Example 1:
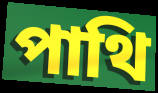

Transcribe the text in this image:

পাথি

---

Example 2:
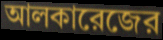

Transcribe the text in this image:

আলকারেজের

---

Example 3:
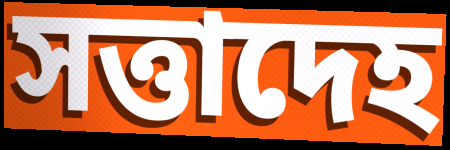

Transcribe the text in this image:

সত্তাদেহ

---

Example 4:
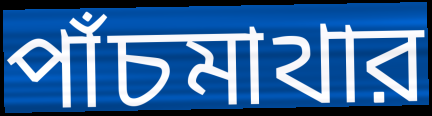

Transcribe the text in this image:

পাঁচমাথার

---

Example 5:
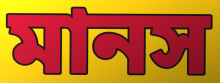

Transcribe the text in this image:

মানস